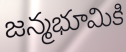
జన్మభూమికి